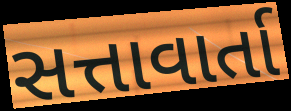
સત્તાવાર્તા